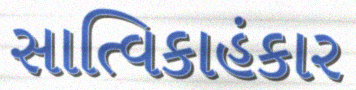
સાત્વિકાહંકાર